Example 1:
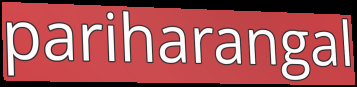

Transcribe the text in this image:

pariharangal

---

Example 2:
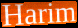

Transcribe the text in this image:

Harim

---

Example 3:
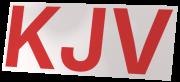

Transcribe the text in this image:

KJV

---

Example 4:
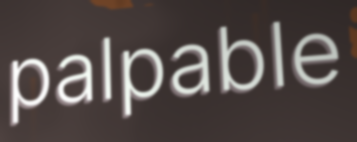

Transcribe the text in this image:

palpable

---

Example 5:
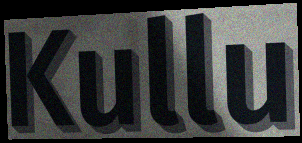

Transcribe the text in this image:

Kullu